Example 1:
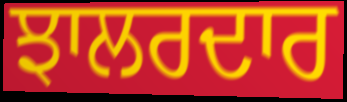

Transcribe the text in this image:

ਝਾਲਰਦਾਰ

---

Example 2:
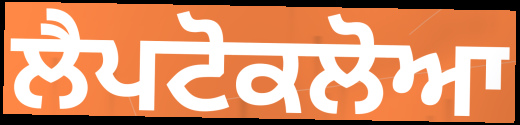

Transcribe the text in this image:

ਲੈਪਟੋਕਲੋਆ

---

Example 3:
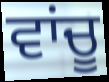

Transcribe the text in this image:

ਵਾਂਚੂ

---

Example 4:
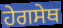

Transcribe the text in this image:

ਹੇਗਸੇਥ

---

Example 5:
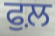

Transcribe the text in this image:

ਫੁਲ਼